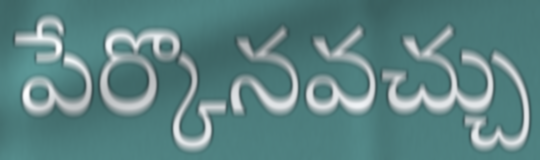
పేర్కొనవచ్చు